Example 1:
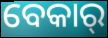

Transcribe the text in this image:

ବେକାର୍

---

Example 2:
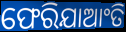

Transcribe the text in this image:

ଫେରିଯାଆଂତି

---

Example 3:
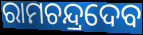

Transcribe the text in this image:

ରାମଚନ୍ଦ୍ରଦେବ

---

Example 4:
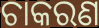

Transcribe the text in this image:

ଚାକରଣ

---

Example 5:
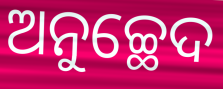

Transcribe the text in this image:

ଅନୁଚ୍ଛେଦ